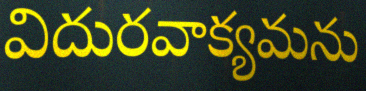
విదురవాక్యమను